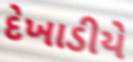
દેખાડીયે